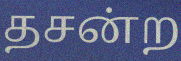
தசன்ற